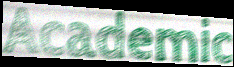
Academic